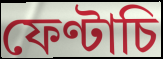
ফেণ্টাচি